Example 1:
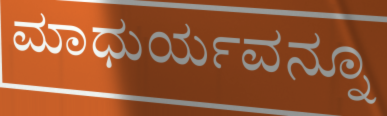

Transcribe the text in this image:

ಮಾಧುರ್ಯವನ್ನೂ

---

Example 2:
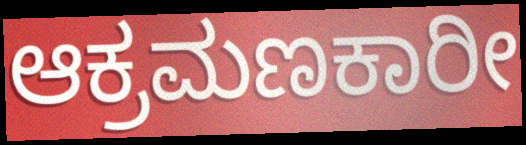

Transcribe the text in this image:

ಆಕ್ರಮಣಕಾರೀ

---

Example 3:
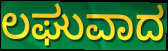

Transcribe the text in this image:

ಲಘುವಾದ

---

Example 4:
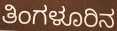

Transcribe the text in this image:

ತಿಂಗಳೂರಿನ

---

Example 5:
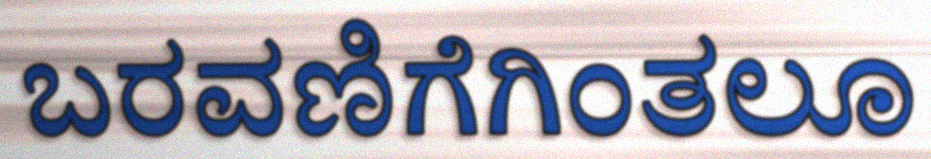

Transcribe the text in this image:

ಬರವಣಿಗೆಗಿಂತಲೂ